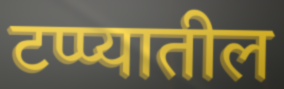
टप्प्यातील